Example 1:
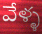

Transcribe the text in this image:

వేళ్ళ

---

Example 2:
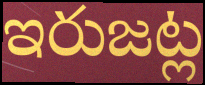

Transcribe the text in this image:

ఇరుజట్ల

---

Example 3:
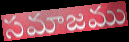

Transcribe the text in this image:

సమాజము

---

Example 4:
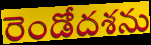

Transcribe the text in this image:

రెండోదశను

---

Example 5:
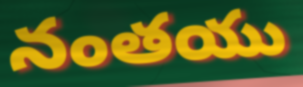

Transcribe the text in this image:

నంతయు